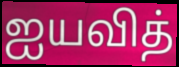
ஐயவித்